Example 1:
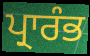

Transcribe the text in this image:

ਪ੍ਰਾਰੰਭ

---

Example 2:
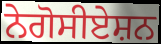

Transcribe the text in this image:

ਨੇਗੋਸੀਏਸ਼ਨ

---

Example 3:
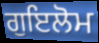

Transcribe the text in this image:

ਗੁਇਲੋਮ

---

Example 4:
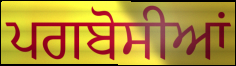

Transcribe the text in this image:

ਪਗਬੋਸੀਆਂ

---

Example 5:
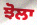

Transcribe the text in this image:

ਝੋਲਾ